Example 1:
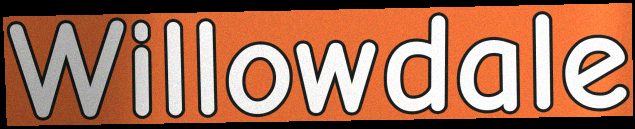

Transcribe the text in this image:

Willowdale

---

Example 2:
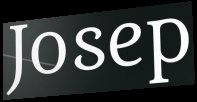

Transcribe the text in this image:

Josep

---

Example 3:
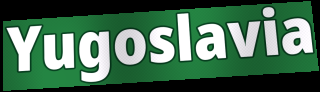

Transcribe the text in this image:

Yugoslavia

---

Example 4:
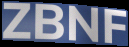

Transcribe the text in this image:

ZBNF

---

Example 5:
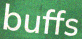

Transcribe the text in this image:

buffs